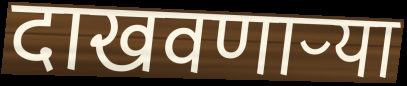
दाखवणाऱ्या